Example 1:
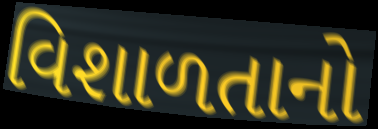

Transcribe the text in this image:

વિશાળતાનો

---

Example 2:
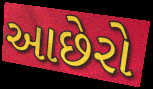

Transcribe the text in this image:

આછેરો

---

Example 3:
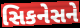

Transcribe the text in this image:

સિકનેસને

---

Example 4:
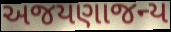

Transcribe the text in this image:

અજયણાજન્ય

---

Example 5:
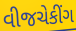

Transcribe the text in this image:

વીજચેકીંગ